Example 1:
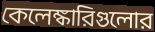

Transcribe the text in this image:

কেলেঙ্কারিগুলোর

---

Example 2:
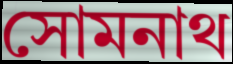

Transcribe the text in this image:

সোমনাথ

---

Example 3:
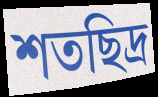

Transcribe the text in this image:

শতছিদ্র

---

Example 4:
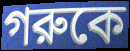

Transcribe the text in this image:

গরুকে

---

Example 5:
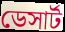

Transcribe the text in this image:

ডেসার্ট